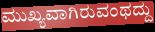
ಮುಖ್ಯವಾಗಿರುವಂಥದ್ದು